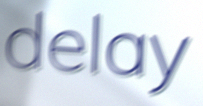
delay